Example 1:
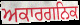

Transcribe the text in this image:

ਅਕਾਰਗਨਿਕ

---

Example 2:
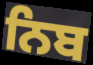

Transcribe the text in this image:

ਨਿਬ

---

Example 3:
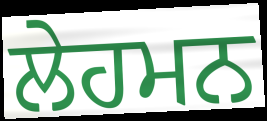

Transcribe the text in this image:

ਲੇਹਮਨ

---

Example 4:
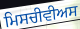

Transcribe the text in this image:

ਮਿਸਚੀਵੀਅਸ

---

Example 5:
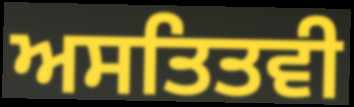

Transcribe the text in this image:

ਅਸਤਿਤਵੀ